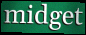
midget